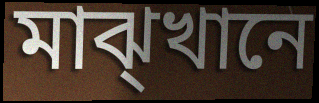
মাঝ্খানে